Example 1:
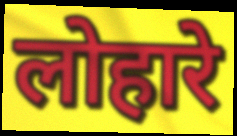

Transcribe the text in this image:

लोहारे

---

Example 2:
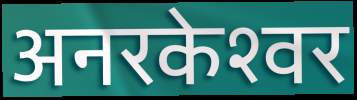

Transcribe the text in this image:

अनरकेश्वर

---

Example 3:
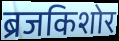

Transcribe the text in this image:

ब्रजकिशोर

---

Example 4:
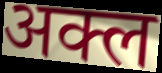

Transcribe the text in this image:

अक्ल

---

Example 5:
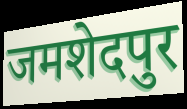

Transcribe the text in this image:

जमशेदपुर